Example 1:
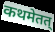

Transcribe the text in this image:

कथमेतत्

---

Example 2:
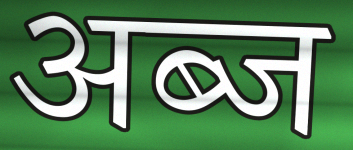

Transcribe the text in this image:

अब्ज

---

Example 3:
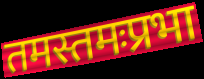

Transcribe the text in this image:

तमस्तमःप्रभा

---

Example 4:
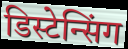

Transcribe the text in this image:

डिस्टेन्सिंग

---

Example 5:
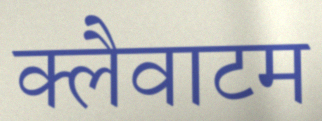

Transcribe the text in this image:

क्लैवाटम